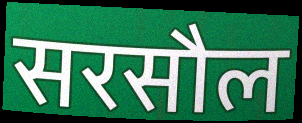
सरसौल